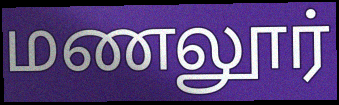
மணலூர்